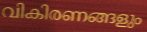
വികിരണങ്ങളും